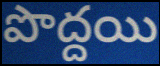
పొద్దయి